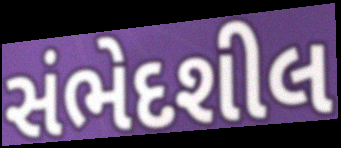
સંભેદશીલ